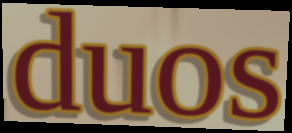
duos